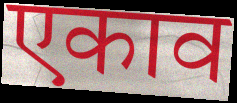
एकाव